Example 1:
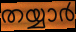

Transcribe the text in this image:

തയ്യാർ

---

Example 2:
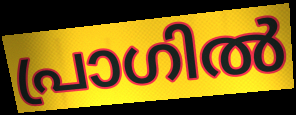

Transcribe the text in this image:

പ്രാഗിൽ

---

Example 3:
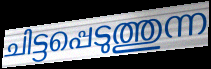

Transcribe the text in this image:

ചിട്ടപ്പെടുത്തുന്ന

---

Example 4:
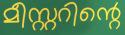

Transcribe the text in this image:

മീസ്റ്ററിന്റെ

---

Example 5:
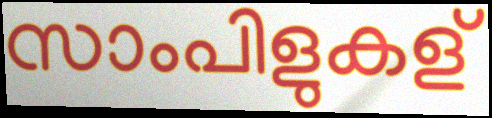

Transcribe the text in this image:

സാംപിളുകള്